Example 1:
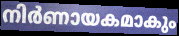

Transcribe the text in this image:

നിർണായകമാകും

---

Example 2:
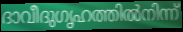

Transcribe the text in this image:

ദാവീദുഗൃഹത്തിൽനിന്ന്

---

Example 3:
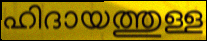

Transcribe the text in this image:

ഹിദായത്തുള്ള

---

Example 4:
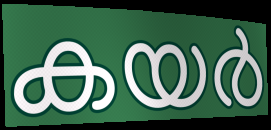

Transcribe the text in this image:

കയർ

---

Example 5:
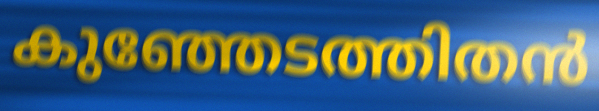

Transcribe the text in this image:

കുഞ്ഞേടത്തിതൻ